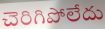
చెరిగిపోలేదు